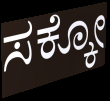
ಸಕ್ಕೋ